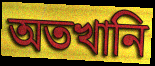
অতখানি